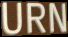
URN